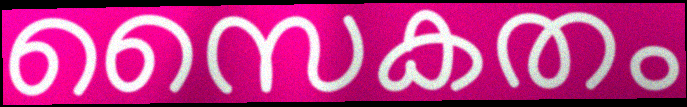
സൈകതം